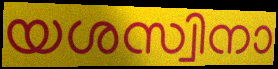
യശസ്വിനാ